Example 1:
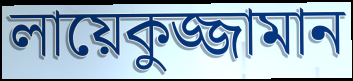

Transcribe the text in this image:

লায়েকুজ্জামান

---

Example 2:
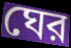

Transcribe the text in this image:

ঘের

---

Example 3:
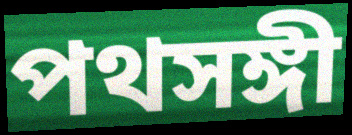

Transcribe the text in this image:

পথসঙ্গী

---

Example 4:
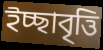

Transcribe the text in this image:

ইচ্ছাবৃত্তি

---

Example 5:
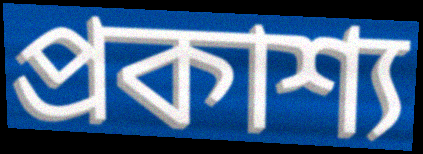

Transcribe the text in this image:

প্রকাশ্য